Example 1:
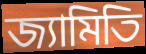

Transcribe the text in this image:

জ্যামিতি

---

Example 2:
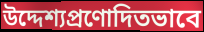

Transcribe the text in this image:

উদ্দেশ্যপ্রণোদিতভাবে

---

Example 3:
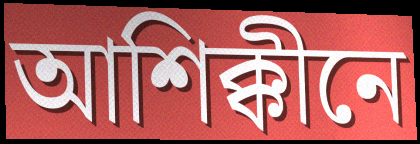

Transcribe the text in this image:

আশিক্কীনে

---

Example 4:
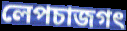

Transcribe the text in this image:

লেপচাজগৎ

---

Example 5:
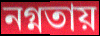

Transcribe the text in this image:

নগ্নতায়